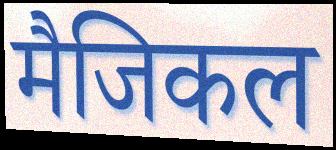
मैजिकल